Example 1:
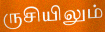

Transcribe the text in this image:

ருசியிலும்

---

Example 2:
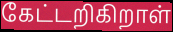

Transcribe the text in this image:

கேட்டறிகிறாள்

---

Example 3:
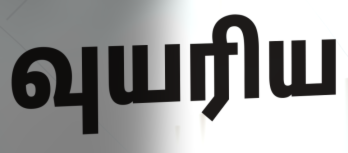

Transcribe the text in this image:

வுயரிய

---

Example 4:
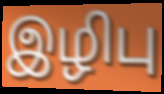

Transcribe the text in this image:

இழிபு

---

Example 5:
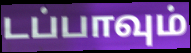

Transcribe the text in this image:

டப்பாவும்